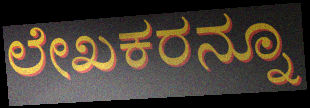
ಲೇಖಕರನ್ನೂ